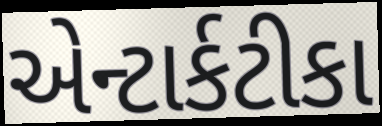
એન્ટાર્કટીકા